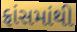
ફ્રાંસમાંથી